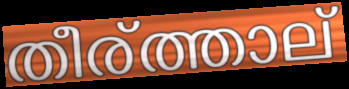
തീര്ത്താല്